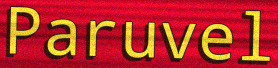
Paruvel